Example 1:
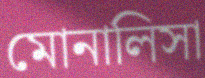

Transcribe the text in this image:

মোনালিসা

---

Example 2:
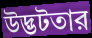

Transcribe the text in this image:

উদ্ভটতার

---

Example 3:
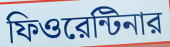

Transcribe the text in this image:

ফিওরেন্টিনার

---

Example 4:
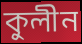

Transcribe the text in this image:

কুলীন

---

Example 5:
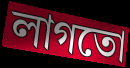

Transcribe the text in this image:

লাগতো